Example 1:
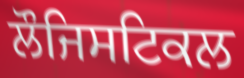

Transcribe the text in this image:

ਲੌਜਿਸਟਿਕਲ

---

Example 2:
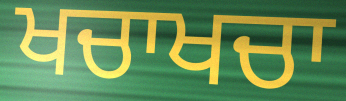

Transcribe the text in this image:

ਖਚਾਖਚਾ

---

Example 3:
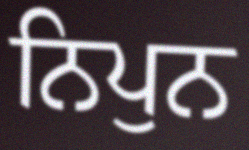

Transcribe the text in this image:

ਨਿਪੁਨ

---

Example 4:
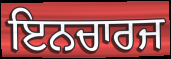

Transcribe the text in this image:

ਇਨਚਾਰਜ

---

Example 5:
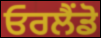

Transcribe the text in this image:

ਓਰਲੈਂਡੋ